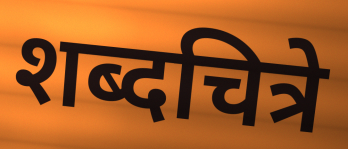
शब्दचित्रे